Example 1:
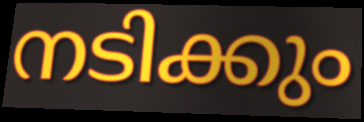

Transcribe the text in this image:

നടിക്കും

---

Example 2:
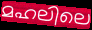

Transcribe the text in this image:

മഹലിലെ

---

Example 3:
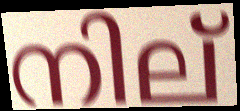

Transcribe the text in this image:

നില്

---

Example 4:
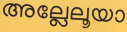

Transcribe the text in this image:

അല്ലേലൂയാ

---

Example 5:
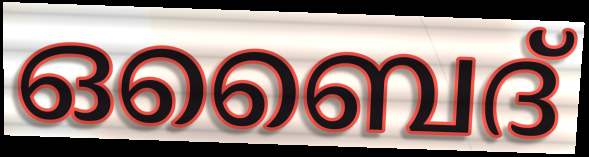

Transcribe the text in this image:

ഒബൈദ്